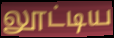
லூட்டிய